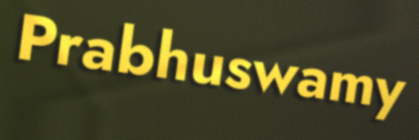
Prabhuswamy